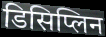
डिसिप्लिन